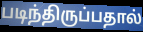
படிந்திருப்பதால்